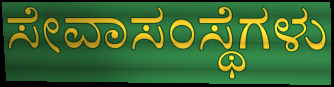
ಸೇವಾಸಂಸ್ಥೆಗಳು